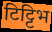
टिट्टिभ